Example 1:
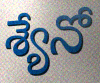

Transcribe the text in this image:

శ్యేనో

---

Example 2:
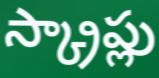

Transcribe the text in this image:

స్క్రాప్లు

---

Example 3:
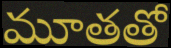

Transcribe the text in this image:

మూతతో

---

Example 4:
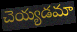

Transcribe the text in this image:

చెయ్యడమా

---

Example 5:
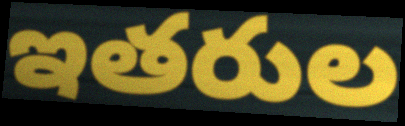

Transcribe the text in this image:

ఇతరుల